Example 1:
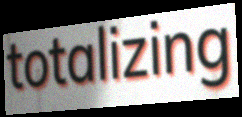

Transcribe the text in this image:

totalizing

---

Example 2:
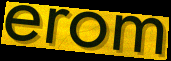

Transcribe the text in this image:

erom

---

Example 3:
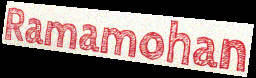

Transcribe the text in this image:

Ramamohan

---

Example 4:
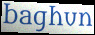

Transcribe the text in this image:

baghun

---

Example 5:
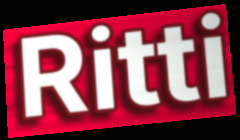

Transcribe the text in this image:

Ritti